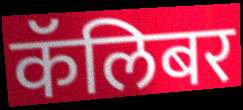
कॅलिबर